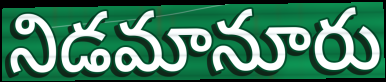
నిడమానూరు